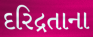
દરિદ્રતાના